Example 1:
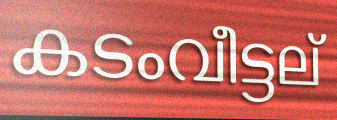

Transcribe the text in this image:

കടംവീട്ടല്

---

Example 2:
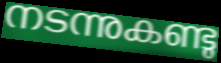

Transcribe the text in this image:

നടന്നുകണ്ടു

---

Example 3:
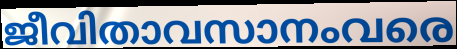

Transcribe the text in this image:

ജീവിതാവസാനംവരെ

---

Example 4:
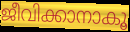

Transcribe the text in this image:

ജീവിക്കാനാകൂ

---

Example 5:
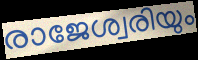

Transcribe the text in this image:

രാജേശ്വരിയും